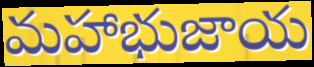
మహాభుజాయ